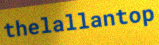
thelallantop